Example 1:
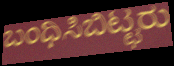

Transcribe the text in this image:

ಬಂಧಿಸಿಬಿಟ್ಟರು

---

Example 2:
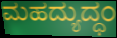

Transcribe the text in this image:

ಮಹದ್ಯುದ್ಧಂ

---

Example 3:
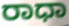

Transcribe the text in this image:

ರಾಧಾ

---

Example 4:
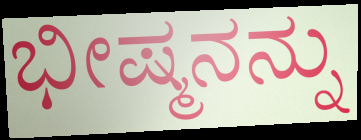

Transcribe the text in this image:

ಭೀಷ್ಮನನ್ನು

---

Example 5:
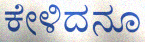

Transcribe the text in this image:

ಕೇಳಿದನೂ